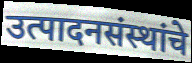
उत्पादनसंस्थांचे